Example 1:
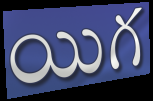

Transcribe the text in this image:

యిగ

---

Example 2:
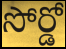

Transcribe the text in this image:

సోర్డో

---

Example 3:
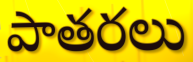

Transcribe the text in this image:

పాతరలు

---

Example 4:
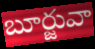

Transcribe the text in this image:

బూర్జువా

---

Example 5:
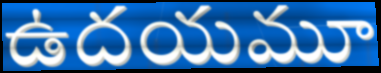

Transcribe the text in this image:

ఉదయమూ